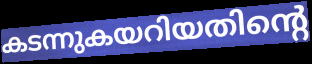
കടന്നുകയറിയതിന്റെ